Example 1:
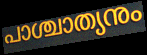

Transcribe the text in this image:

പാശ്ചാത്യനും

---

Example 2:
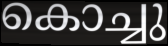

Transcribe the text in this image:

കൊച്ചു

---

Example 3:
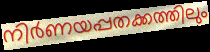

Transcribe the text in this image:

നിർണയപ്പതക്കത്തിലും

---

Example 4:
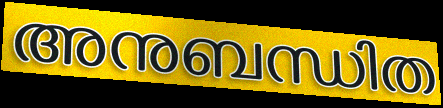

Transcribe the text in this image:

അനുബന്ധിത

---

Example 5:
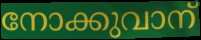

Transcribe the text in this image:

നോക്കുവാന്